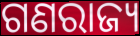
ଗଣରାଜ୍ୟ